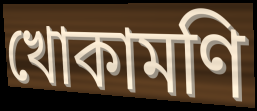
খোকামণি